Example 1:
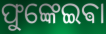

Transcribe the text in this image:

ଫୁଙ୍କେଇଵା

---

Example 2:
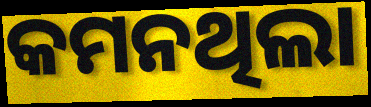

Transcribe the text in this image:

କମନଥିଲା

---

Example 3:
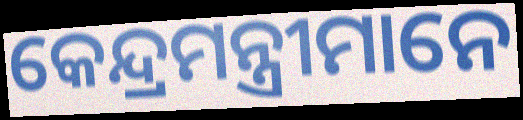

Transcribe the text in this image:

କେନ୍ଦ୍ରମନ୍ତ୍ରୀମାନେ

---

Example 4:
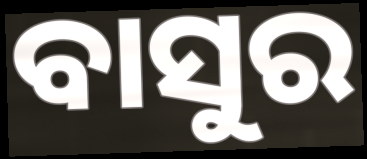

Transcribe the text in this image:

ବାସୁର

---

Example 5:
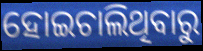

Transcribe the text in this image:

ହୋଇଚାଲିଥିବାରୁ